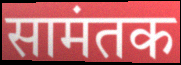
सामंतक